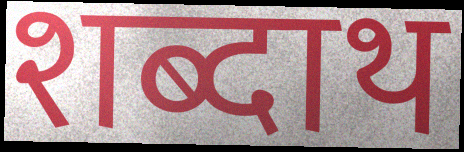
शब्दाथ